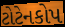
ટોટેનકોપ